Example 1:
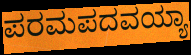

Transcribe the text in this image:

ಪರಮಪದವಯ್ಯಾ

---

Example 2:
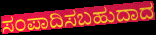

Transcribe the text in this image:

ಸಂಪಾದಿಸಬಹುದಾದ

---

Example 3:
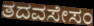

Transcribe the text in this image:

ತದವಸೇಸಂ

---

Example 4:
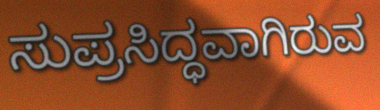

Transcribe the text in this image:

ಸುಪ್ರಸಿದ್ಧವಾಗಿರುವ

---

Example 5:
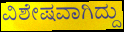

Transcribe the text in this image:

ವಿಶೇಷವಾಗಿದ್ದು